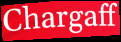
Chargaff